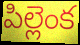
పిల్లెంక